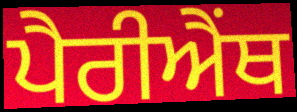
ਪੈਰੀਐਂਥ